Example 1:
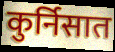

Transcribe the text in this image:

कुर्निसात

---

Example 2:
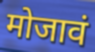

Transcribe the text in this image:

मोजावं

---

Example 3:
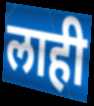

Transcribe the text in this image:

लाही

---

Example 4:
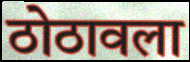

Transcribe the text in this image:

ठोठावला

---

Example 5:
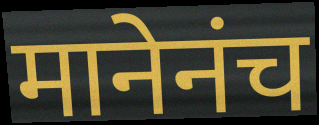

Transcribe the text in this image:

मानेनंच